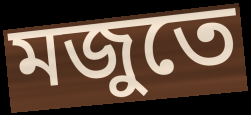
মজুতে